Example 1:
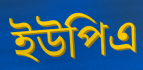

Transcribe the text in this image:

ইউপিএ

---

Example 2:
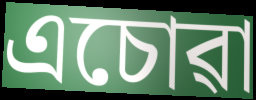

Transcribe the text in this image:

এচোৱা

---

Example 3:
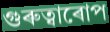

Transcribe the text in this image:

গুৰুত্বাৰোপ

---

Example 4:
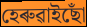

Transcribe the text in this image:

হেৰুৱাইছোঁ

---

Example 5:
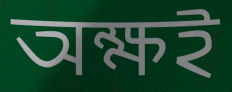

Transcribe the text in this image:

অক্ষই